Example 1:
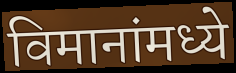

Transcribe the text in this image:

विमानांमध्ये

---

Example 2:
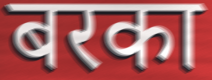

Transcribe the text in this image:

बरका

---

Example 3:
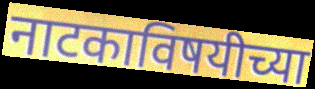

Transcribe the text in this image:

नाटकाविषयीच्या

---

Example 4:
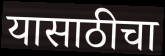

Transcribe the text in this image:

यासाठीचा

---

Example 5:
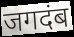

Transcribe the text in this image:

जगदंब